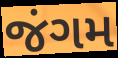
જંગમ